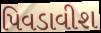
પિવડાવીશ